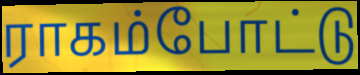
ராகம்போட்டு